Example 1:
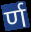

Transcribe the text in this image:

र्ण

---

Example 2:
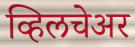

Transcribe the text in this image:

व्हिलचेअर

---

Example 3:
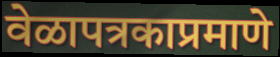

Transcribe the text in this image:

वेळापत्रकाप्रमाणे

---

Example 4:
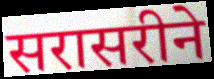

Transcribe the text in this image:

सरासरीने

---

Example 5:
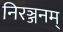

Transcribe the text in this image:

निरञ्जनम्